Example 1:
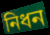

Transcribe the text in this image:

নিধন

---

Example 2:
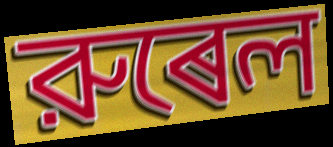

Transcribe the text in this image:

ৰুৰেল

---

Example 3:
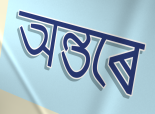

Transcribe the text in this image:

অন্তৰে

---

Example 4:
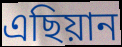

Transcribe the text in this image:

এছিয়ান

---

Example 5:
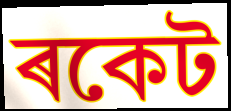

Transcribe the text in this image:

ৰকেট